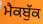
ਮੈਕਬੁੱਕ